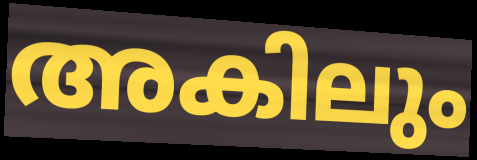
അകിലും